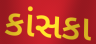
કાંસકા